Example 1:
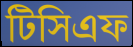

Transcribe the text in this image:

টিসিএফ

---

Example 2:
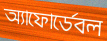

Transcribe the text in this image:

অ্যাফোর্ডেবল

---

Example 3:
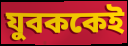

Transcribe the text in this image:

যুবককেই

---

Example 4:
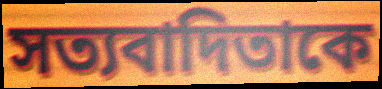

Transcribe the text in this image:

সত্যবাদিতাকে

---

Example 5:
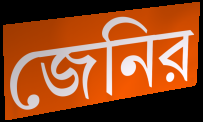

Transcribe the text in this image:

জেনির